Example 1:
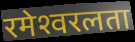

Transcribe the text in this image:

रमेश्वरलता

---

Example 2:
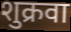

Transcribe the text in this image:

शुक्रवा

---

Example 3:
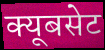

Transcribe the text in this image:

क्यूबसेट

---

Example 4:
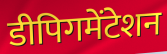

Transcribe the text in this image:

डीपिगमेंटेशन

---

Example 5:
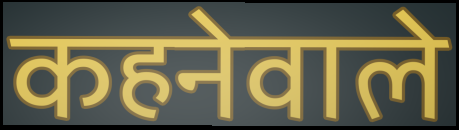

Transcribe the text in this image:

कहनेवाले